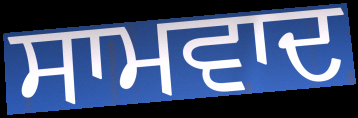
ਸਾਮਵਾਦ